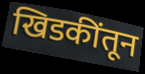
खिडकींतून